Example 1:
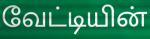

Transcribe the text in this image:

வேட்டியின்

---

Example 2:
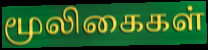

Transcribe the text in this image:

மூலிகைகள்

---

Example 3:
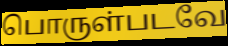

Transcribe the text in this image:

பொருள்படவே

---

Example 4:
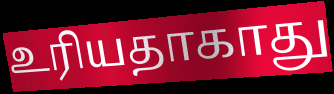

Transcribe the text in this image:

உரியதாகாது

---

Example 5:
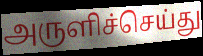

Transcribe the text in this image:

அருளிச்செய்து